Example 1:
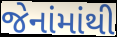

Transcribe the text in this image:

જેનાંમાંથી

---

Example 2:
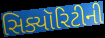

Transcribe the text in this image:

સિક્યૉરિટીની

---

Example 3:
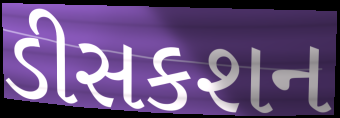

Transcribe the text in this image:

ડીસકશન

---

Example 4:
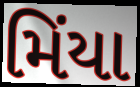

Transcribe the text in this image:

મિંયા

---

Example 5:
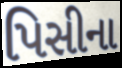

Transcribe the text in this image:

પિસીના